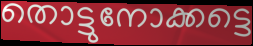
തൊട്ടുനോക്കട്ടെ